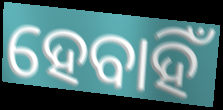
ହେବାହିଁ